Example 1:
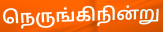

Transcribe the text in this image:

நெருங்கிநின்று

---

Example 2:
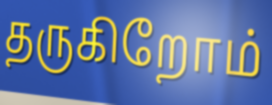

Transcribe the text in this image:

தருகிறோம்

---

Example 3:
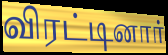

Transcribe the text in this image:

விரட்டினார்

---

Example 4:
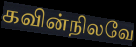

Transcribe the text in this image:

கவின்நிலவே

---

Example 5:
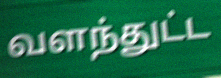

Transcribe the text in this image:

வளந்துட்ட